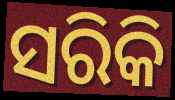
ସରିକି